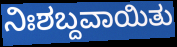
ನಿಃಶಬ್ದವಾಯಿತು